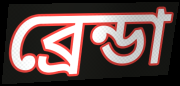
ব্রেন্ডা